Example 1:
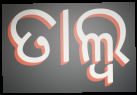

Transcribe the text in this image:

ତାଲ୍ୱ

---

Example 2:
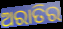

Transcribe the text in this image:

ଅରାତିର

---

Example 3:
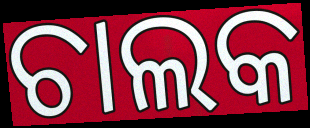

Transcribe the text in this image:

ଚାଲକ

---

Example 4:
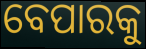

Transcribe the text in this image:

ବେପାରକୁ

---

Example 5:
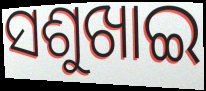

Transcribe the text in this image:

ସଶୁଖାଇ